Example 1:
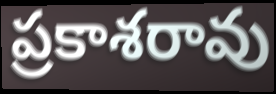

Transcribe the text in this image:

ప్రకాశరావు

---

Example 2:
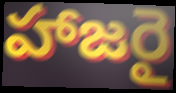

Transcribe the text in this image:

హాజరై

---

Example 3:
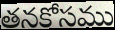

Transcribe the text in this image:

తనకోసము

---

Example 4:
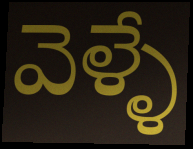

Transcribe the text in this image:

వెళ్ళే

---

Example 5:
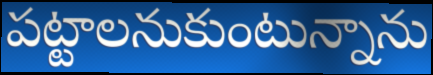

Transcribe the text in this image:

పట్టాలనుకుంటున్నాను